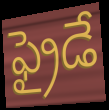
ఫ్రైడే